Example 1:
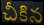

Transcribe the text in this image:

చీకిన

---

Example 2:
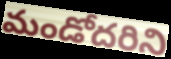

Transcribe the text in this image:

మండోదరిని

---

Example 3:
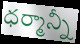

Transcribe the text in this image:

ధర్మాన్నీ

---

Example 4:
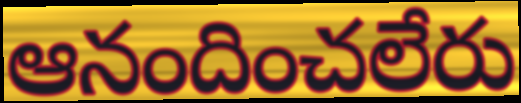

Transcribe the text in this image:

ఆనందించలేరు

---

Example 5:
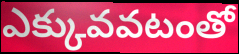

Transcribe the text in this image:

ఎక్కువవటంతో